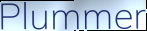
Plummer